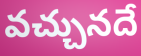
వచ్చునదే